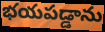
భయపడ్డాను